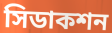
সিডাকশন